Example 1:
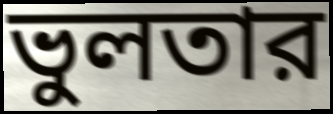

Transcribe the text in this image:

ভুলতার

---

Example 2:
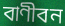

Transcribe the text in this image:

বাণীবন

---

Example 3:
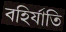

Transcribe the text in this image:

বহির্যাতি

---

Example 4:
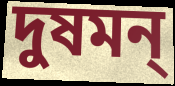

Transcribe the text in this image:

দুষমন্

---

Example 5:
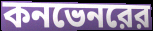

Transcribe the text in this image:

কনভেনরের